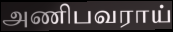
அணிபவராய்